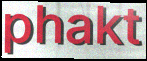
phakt